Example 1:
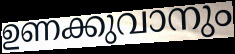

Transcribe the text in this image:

ഉണക്കുവാനും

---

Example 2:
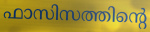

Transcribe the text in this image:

ഫാസിസത്തിന്റെ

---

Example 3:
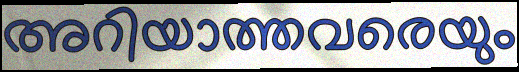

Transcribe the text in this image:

അറിയാത്തവരെയും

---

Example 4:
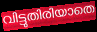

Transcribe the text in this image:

വിട്ടുതിരിയാതെ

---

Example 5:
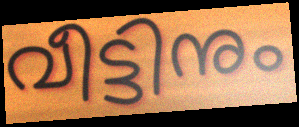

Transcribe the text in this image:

വീട്ടിനും